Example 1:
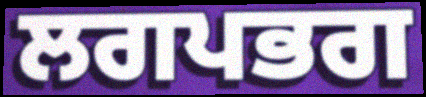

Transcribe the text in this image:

ਲਗਪਭਗ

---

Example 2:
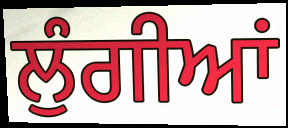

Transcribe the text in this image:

ਲੁੰਗੀਆਂ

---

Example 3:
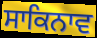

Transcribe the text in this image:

ਸਾਕਿਨਾਵ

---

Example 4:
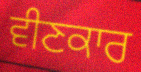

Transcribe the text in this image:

ਵੀਣਕਾਰ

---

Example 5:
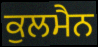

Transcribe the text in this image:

ਕੁਲਮੈਨ